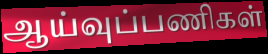
ஆய்வுப்பணிகள்